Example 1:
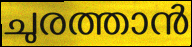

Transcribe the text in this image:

ചുരത്താൻ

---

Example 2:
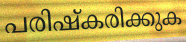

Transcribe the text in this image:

പരിഷ്കരിക്കുക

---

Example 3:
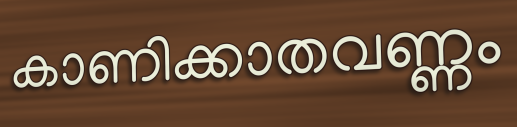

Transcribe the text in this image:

കാണിക്കാതവണ്ണം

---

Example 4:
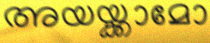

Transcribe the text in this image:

അയയ്ക്കാമോ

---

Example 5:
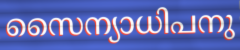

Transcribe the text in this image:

സൈന്യാധിപനു